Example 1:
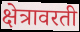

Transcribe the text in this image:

क्षेत्रावरती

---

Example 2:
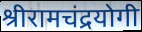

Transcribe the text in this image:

श्रीरामचंद्रयोगी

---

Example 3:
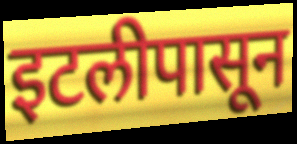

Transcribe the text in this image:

इटलीपासून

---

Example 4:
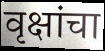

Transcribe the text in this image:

वृक्षांचा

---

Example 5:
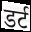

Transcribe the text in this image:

डर्ट